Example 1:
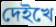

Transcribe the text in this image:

দেইখে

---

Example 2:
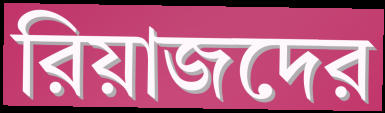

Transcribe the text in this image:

রিয়াজদের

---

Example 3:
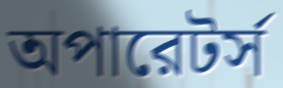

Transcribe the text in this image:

অপারেটর্স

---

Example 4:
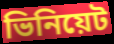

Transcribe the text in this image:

ভিনিয়েট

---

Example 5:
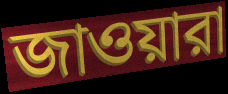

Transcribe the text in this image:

জাওয়ারা